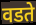
वडते